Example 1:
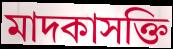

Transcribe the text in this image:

মাদকাসক্তি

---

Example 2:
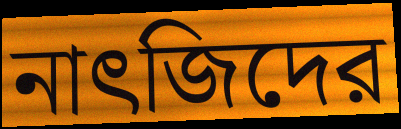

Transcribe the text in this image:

নাৎজিদের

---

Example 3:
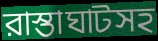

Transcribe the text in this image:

রাস্তাঘাটসহ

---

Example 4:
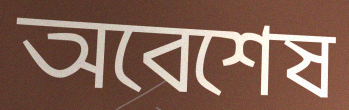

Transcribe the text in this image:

অবেশেষ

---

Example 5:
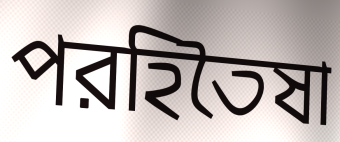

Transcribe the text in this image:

পরহিতৈষা